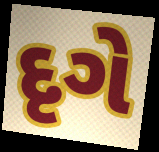
દૃગે